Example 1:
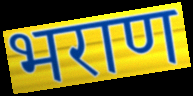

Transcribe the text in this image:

भराण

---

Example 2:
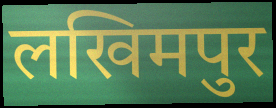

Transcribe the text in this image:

लखिमपुर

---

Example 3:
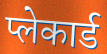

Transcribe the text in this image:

प्‍लेकार्ड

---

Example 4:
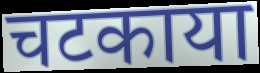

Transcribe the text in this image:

चटकाया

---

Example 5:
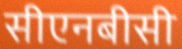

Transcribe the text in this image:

सीएनबीसी